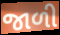
જાળી